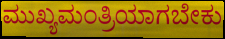
ಮುಖ್ಯಮಂತ್ರಿಯಾಗಬೇಕು